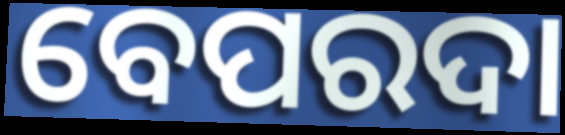
ବେପରଦା